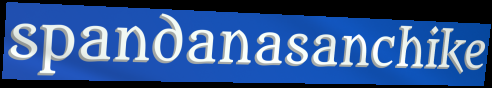
spandanasanchike